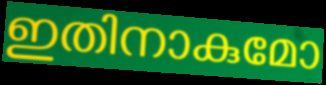
ഇതിനാകുമോ